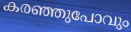
കരഞ്ഞുപോവും